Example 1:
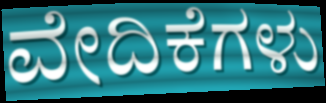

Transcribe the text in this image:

ವೇದಿಕೆಗಳು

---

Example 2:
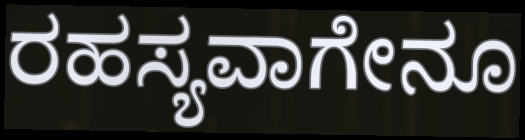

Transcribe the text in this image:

ರಹಸ್ಯವಾಗೇನೂ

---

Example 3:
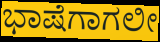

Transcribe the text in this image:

ಭಾಷೆಗಾಗಲೀ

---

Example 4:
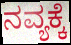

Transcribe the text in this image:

ನವ್ಯಕ್ಕೆ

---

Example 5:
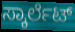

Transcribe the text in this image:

ಸ್ಕಾರ್ಲೆಟ್